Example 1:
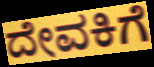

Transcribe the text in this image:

ದೇವಕಿಗೆ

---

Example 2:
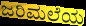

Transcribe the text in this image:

ಜರಿಮಲೆಯ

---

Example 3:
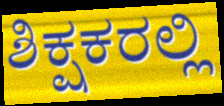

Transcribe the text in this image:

ಶಿಕ್ಷಕರಲ್ಲಿ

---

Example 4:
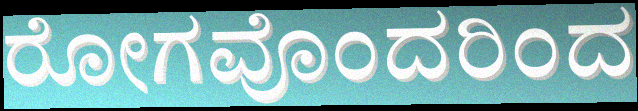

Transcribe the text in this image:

ರೋಗವೊಂದರಿಂದ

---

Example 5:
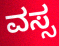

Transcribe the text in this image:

ವಸ್ಸ